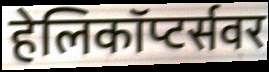
हेलिकॉप्टर्सवर